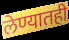
लेण्यातही